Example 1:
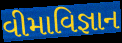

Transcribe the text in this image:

વીમાવિજ્ઞાન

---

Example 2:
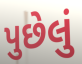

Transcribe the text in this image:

પુછેલું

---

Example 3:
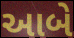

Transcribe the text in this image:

આબે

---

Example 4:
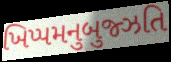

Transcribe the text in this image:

ખિપ્પમનુબુજ્ઝતિ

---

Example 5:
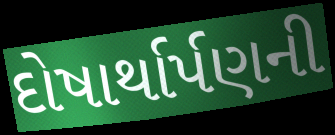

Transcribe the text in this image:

દોષાર્થાર્પણની